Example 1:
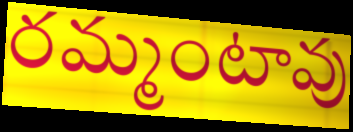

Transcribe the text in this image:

రమ్మంటావు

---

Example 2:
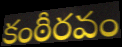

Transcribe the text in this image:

కంఠీరవం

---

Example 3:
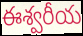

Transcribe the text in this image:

ఈశ్వరీయ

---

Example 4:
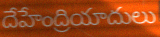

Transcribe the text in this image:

దేహేంద్రియాదులు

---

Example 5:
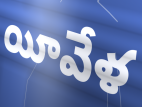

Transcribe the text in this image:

యీవేళ